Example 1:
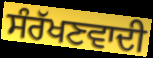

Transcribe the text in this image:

ਸੰਰੱਖਣਵਾਦੀ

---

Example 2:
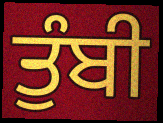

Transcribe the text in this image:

ਤੁੰਬੀ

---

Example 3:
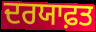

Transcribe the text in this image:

ਦਰਯਾਫ਼ਤ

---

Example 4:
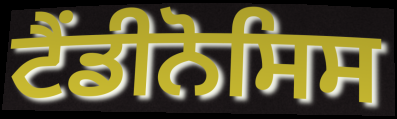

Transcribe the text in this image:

ਟੈਂਡੀਨੋਸਿਸ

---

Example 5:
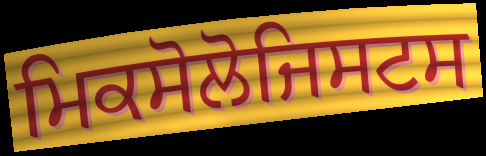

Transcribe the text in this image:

ਮਿਕਸੋਲੋਜਿਸਟਸ